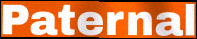
Paternal